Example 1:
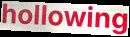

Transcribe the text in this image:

hollowing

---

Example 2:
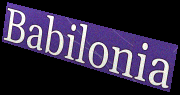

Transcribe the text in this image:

Babilonia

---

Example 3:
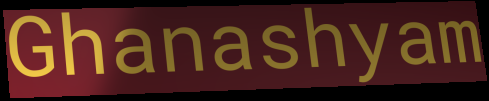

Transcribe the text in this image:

Ghanashyam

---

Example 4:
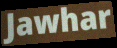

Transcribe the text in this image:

Jawhar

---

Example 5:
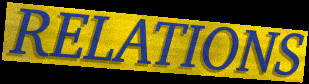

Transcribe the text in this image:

RELATIONS